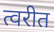
त्वरीत